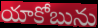
యాకోబును